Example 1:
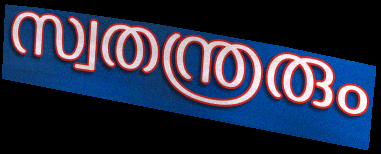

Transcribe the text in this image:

സ്വതന്ത്രരും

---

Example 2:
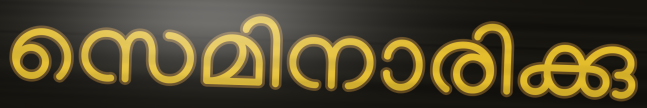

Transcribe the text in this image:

സെമിനാരിക്കു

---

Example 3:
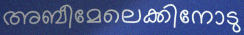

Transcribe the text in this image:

അബീമേലെക്കിനോടു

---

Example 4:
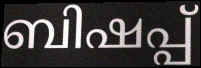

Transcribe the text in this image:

ബിഷപ്പ്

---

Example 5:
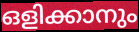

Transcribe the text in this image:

ഒളിക്കാനും